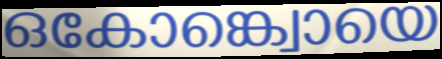
ഒകോങ്ക്വൊയെ